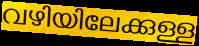
വഴിയിലേക്കുള്ള